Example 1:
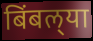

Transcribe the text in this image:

बिंबल्या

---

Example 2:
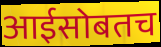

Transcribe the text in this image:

आईसोबतच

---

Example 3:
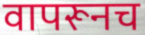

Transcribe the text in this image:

वापरूनच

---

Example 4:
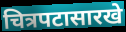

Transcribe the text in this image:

चित्रपटासारखे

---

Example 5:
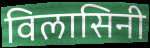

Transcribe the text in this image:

विलासिनी